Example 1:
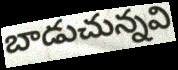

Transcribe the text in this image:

బాడుచున్నవి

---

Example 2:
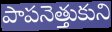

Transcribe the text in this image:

పాపనెత్తుకుని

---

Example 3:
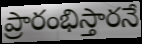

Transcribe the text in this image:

ప్రారంభిస్తారనే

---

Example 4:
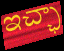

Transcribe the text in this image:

ఇచ్ఛా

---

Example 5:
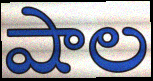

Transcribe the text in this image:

షాల